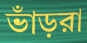
ভাঁড়রা